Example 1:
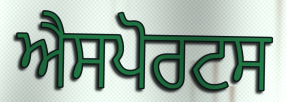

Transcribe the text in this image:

ਐਸਪੋਰਟਸ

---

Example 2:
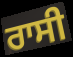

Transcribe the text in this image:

ਰਾਸੀ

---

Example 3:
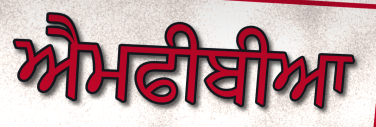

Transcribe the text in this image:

ਐਮਫੀਬੀਆ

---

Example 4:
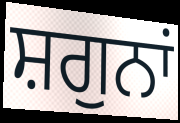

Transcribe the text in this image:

ਸ਼ਗੁਨਾਂ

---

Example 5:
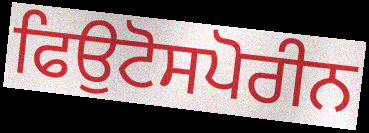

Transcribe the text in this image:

ਫਿਉਟੋਸਪੋਰੀਨ